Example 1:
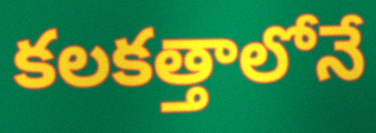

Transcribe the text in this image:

కలకత్తాలోనే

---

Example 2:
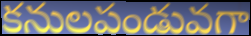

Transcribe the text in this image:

కనులపండువగా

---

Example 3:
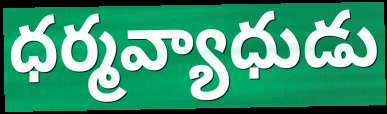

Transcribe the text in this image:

ధర్మవ్యాధుడు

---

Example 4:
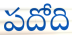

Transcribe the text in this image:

పదోది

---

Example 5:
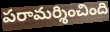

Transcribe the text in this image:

పరామర్శించింది